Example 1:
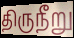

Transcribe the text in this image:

திருநீறு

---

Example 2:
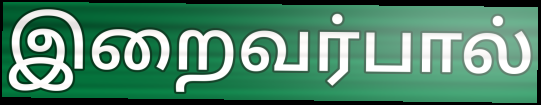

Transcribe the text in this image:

இறைவர்பால்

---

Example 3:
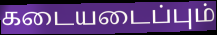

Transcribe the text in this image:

கடையடைப்பும்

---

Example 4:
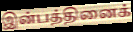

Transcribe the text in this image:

இன்பத்தினைக்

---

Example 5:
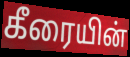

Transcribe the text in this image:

கீரையின்